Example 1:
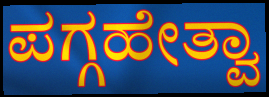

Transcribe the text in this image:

ಪಗ್ಗಹೇತ್ವಾ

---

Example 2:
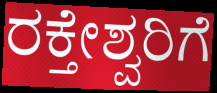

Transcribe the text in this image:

ರಕ್ತೇಶ್ವರಿಗೆ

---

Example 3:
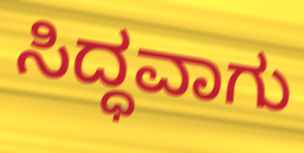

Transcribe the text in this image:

ಸಿದ್ಧವಾಗು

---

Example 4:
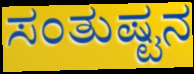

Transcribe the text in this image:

ಸಂತುಷ್ಟನ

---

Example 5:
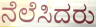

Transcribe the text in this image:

ನೆಲೆಸಿದರು